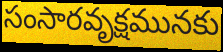
సంసారవృక్షమునకు